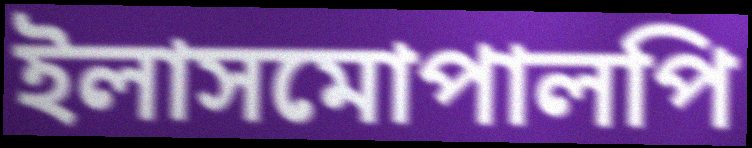
ইলাসমোপালপি